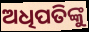
ଅଧିପତିଙ୍କୁ